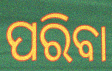
ପରିବା